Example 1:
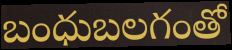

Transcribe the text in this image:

బంధుబలగంతో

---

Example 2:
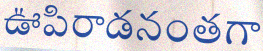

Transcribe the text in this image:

ఊపిరాడనంతగా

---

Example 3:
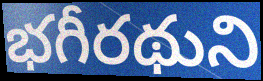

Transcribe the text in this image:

భగీరథుని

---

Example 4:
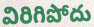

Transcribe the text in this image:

విరిగిపోదు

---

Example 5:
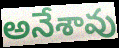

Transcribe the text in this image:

అనేశావు